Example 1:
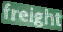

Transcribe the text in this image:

freight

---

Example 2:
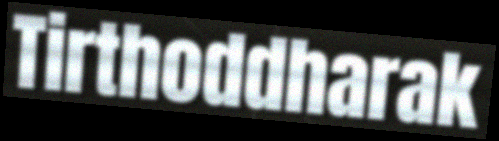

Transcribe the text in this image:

Tirthoddharak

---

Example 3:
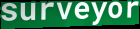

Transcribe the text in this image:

surveyor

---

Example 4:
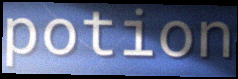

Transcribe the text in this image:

potion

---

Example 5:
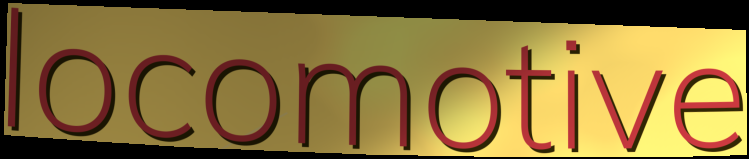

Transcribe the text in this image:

locomotive